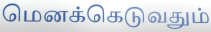
மெனக்கெடுவதும்